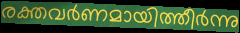
രക്തവർണമായിത്തീർന്നു